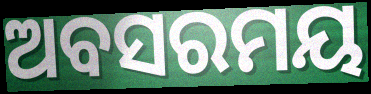
ଅବସରମୟ